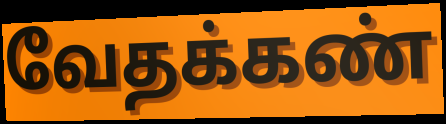
வேதக்கண்